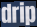
drip